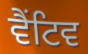
ਵੈਂਟਿਵ